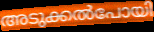
അടുക്കൽപോയി